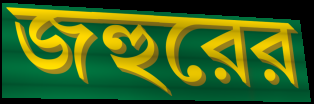
জহুরের